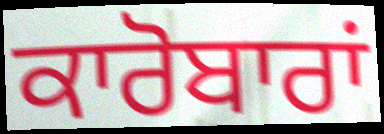
ਕਾਰੋਬਾਰਾਂ